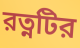
রত্নটির